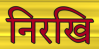
निरखि